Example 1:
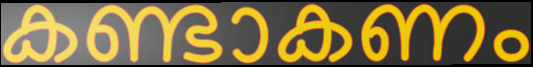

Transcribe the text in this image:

കണ്ടാകണം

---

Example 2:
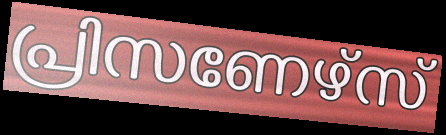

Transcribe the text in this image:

പ്രിസണേഴ്സ്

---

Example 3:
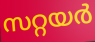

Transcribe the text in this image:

സറ്റയർ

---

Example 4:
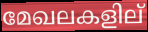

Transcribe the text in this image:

മേഖലകളില്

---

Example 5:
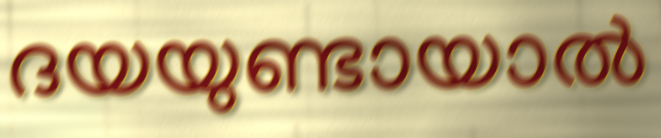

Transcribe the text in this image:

ദയയുണ്ടായാൽ